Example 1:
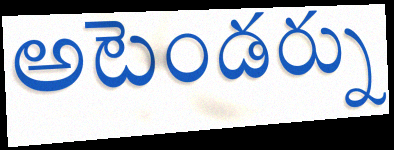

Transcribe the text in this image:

అటెండర్ను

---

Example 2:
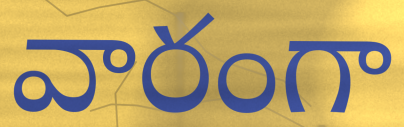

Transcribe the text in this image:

వారంగా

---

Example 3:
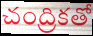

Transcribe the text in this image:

చంద్రికతో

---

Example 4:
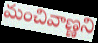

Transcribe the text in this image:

మంచివాణ్ణని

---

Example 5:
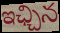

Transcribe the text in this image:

ఇఛ్చిన